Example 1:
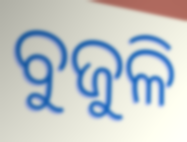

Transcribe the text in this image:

ବୁଜୁଳି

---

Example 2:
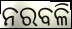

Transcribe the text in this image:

ନରବଳି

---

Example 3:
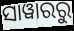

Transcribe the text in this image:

ସାୱାରରୁ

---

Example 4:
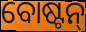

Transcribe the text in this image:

ବୋଷ୍ଟନ୍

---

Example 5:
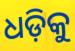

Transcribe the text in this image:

ଧଡ଼ିକୁ